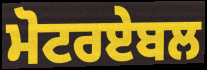
ਮੋਟਰਏਬਲ